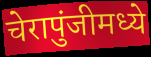
चेरापुंजीमध्ये